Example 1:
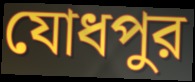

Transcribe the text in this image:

যোধপুর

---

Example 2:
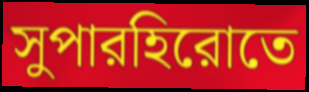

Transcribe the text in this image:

সুপারহিরোতে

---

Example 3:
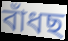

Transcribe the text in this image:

বাঁধছ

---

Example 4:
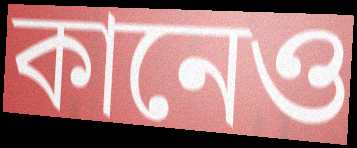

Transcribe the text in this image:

কানেও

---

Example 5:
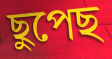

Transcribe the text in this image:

ছুপেছ